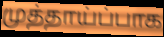
முத்தாய்ப்பாக